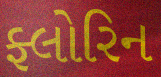
ફ્લોરિન